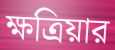
ক্ষত্রিয়ার